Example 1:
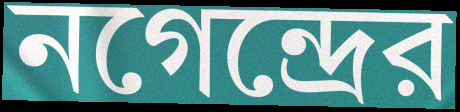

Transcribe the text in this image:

নগেন্দ্রের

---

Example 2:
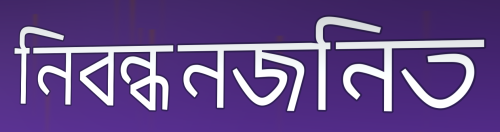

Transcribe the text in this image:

নিবন্ধনজনিত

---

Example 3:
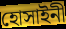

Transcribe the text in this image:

হোসাইনী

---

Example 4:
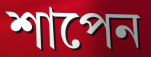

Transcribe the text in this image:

শাপেন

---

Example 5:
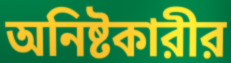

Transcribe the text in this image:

অনিষ্টকারীর